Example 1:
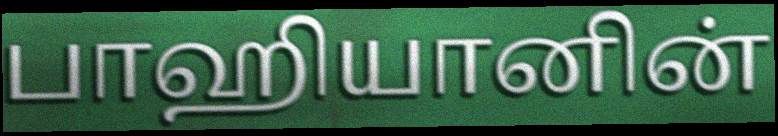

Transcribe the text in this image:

பாஹியானின்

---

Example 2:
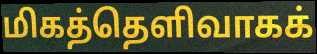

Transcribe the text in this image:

மிகத்தெளிவாகக்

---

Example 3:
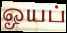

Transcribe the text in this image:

ஓயப்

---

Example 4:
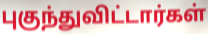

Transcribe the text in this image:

புகுந்துவிட்டார்கள்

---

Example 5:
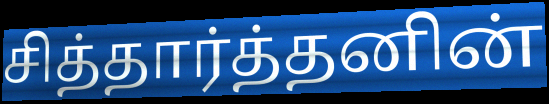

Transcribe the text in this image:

சித்தார்த்தனின்